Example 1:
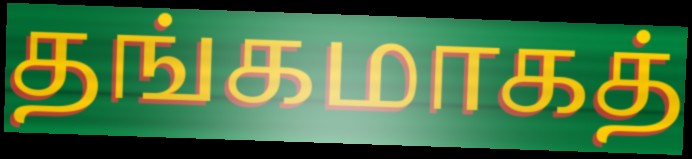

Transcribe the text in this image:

தங்கமாகத்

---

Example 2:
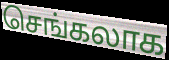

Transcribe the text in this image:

செங்கலாக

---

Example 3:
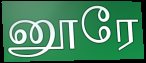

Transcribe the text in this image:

னூரே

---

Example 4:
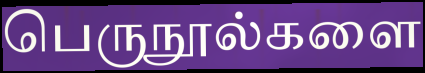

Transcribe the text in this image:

பெருநூல்களை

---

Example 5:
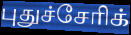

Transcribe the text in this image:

புதுச்சேரிக்